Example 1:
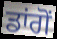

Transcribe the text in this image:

ਡਾਂਗੋਂ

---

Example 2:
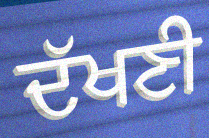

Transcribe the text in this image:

ਦੱਖਣੀ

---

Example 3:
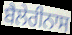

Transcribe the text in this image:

ਬੈਲੇਰੀਨਾਸ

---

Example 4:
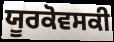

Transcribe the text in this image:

ਯੂਰਕੋਵਸਕੀ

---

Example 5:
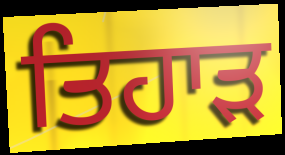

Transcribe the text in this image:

ਤਿਹਾੜ